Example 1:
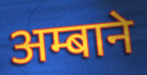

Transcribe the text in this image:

अम्बाने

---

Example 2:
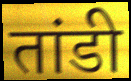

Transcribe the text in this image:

तांडी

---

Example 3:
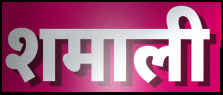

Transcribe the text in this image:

शमाली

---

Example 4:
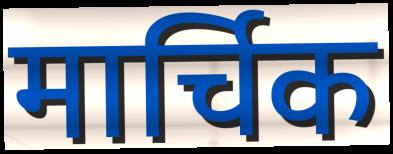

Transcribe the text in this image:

मार्चिक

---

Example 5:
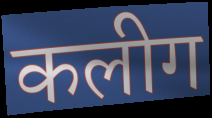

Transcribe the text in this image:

कलीग